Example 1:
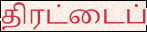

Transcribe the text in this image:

திரட்டைப்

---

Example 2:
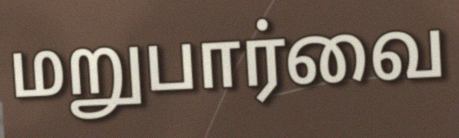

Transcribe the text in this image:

மறுபார்வை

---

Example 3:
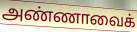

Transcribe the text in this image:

அண்ணாவைக்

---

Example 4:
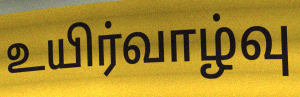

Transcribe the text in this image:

உயிர்வாழ்வு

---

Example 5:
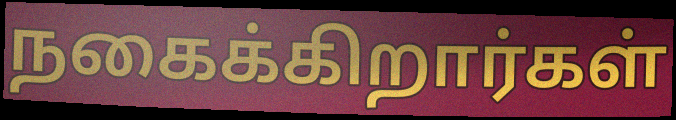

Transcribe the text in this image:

நகைக்கிறார்கள்